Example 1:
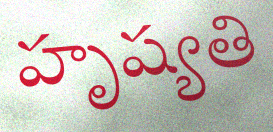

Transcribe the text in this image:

హృష్యతి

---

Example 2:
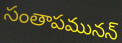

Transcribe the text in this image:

సంతాపమునన్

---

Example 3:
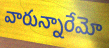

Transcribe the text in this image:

వారున్నారేమో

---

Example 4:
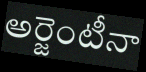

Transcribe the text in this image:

అర్జెంటీనా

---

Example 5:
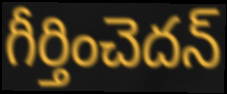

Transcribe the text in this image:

గీర్తించెదన్